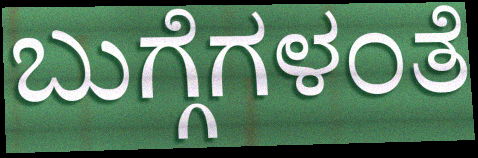
ಬುಗ್ಗೆಗಳಂತೆ